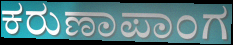
ಕರುಣಾಪಾಂಗ